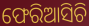
ଫେରିଆସିଚି